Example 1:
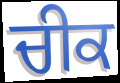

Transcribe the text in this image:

ਚੀਕ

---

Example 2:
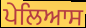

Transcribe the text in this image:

ਪੇਲਿਆਸ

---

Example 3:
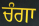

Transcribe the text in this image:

ਚੰਗਾ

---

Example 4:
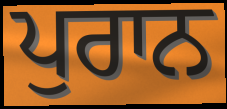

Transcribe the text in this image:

ਪੁਰਾਨ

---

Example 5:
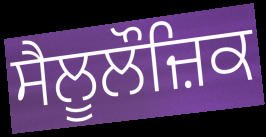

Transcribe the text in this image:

ਸੈਲੂਲੌਜ਼ਿਕ